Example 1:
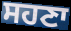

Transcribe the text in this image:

ਸਹਣਾ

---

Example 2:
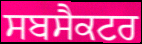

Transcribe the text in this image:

ਸਬਸੈਕਟਰ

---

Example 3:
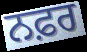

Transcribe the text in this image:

ਨਫ਼ਰ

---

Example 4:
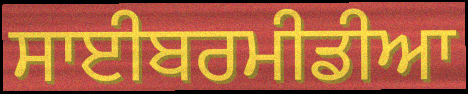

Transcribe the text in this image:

ਸਾਈਬਰਮੀਡੀਆ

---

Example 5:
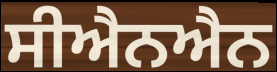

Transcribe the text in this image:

ਸੀਐਨਐਨ